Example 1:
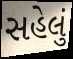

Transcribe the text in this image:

સહેલું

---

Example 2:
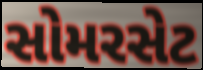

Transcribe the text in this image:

સોમરસેટ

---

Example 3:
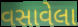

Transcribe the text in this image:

વસાવેલા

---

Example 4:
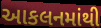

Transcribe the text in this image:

આકલનમાંથી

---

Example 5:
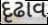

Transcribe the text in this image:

દૃઢાવ